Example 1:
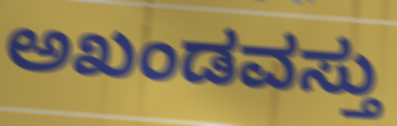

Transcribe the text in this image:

ಅಖಂಡವಸ್ತು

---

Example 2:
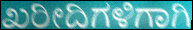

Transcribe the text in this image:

ಖರೀದಿಗಳಿಗಾಗಿ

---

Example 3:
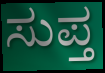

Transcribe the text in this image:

ಸುಪ್ತ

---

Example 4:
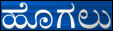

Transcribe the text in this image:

ಹೊಗಲು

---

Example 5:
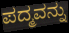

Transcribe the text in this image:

ಪದ್ಮವನ್ನು